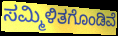
ಸಮ್ಮಿಳಿತಗೊಂಡಿವೆ